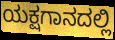
ಯಕ್ಷಗಾನದಲ್ಲಿ